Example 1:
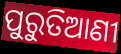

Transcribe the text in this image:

ପୁରୁତିଆଣୀ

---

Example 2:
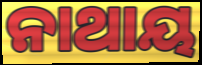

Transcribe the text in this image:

ନାଥାୟ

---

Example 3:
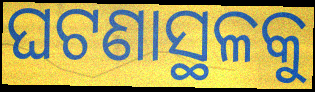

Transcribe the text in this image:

ଘଟଣାସ୍ଥଳକୁ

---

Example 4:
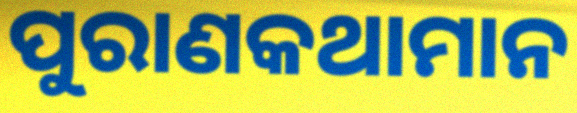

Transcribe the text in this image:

ପୁରାଣକଥାମାନ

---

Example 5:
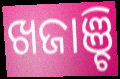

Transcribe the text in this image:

ଖଜାଞ୍ଚି